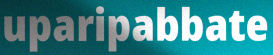
uparipabbate